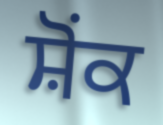
ਸ਼ੋਂਕ